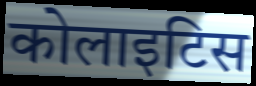
कोलाइटिस